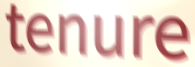
tenure